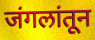
जंगलांतून